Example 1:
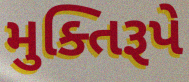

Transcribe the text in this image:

મુક્તિરૂપે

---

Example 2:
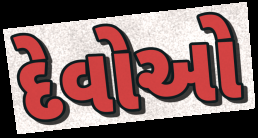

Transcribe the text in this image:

દેવોઓ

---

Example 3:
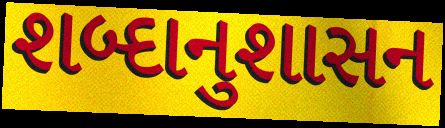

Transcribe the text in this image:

શબ્દાનુશાસન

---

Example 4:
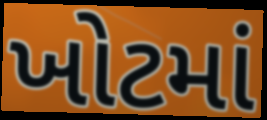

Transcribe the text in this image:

ખોટમાં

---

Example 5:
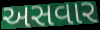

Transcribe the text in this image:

અસવાર